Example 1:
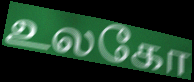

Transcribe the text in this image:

உலகோ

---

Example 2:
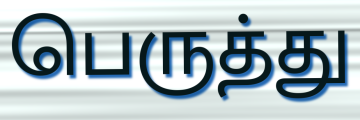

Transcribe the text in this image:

பெருத்து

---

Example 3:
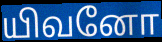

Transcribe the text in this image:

யிவனோ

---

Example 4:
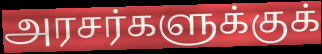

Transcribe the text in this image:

அரசர்களுக்குக்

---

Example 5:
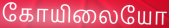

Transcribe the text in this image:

கோயிலையோ